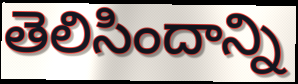
తెలిసిందాన్ని